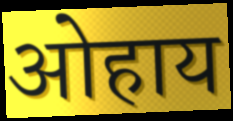
ओहाय